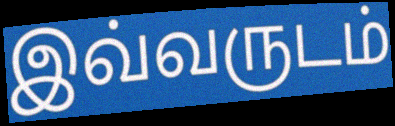
இவ்வருடம்